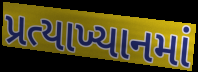
પ્રત્યાખ્યાનમાં